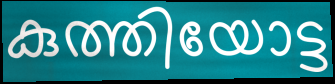
കുത്തിയോട്ട